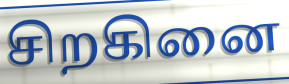
சிறகினை